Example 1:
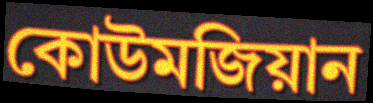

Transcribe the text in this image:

কোউমজিয়ান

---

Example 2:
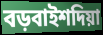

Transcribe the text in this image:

বড়বাইশদিয়া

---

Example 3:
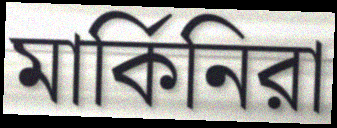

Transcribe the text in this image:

মার্কিনিরা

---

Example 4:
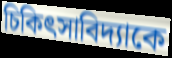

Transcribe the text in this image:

চিকিৎসাবিদ্যাকে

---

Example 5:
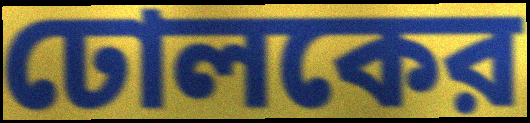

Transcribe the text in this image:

ঢোলকের